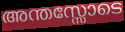
അന്തസ്സോടെ